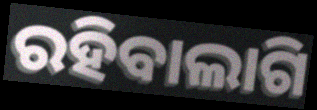
ରହିବାଲାଗି